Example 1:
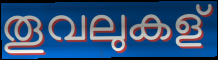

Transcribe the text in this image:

തൂവലുകള്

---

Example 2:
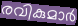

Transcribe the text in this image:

രവികുമാർ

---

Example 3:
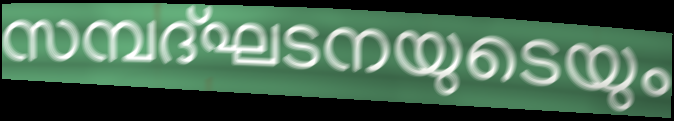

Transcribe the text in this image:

സമ്പദ്ഘടനയുടെയും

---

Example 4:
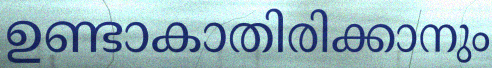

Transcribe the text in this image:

ഉണ്ടാകാതിരിക്കാനും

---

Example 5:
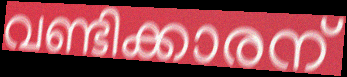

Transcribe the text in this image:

വണ്ടിക്കാരന്